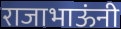
राजाभाऊंनी